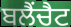
ਬਲੈਂਚੈਟ